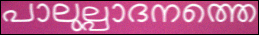
പാലുല്പാദനത്തെ